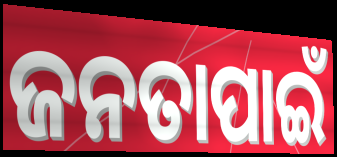
ଜନତାପାଇଁ